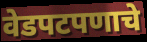
वेडपटपणाचे